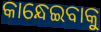
କାନ୍ଧେଇବାକୁ